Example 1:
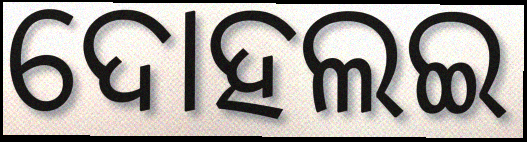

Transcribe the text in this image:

ଦୋହଲଇ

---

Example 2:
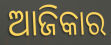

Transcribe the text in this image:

ଆଜିକାର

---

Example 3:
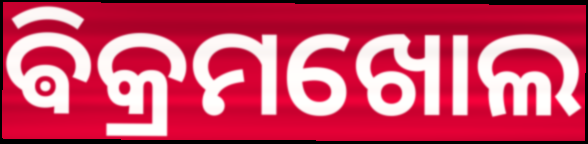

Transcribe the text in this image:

ଵିକ୍ରମଖୋଲ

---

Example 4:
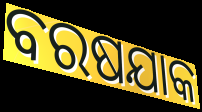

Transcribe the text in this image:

ବରଷଯାକ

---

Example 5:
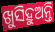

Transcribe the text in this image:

ଖୁସିହୁଅନ୍ତି